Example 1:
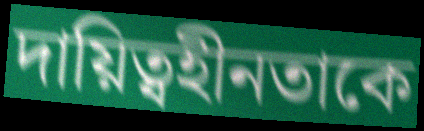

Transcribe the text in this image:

দায়িত্বহীনতাকে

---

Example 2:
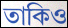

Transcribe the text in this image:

তাকিও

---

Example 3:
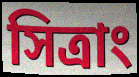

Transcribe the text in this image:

সিত্রাং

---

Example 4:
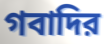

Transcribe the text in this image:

গবাদির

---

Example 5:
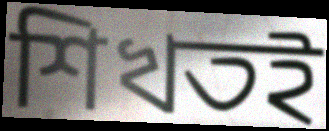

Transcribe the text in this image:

শিখতই